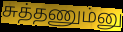
சுத்தணும்னு